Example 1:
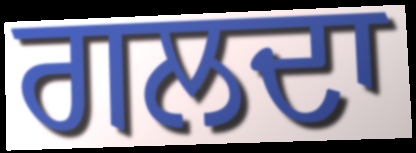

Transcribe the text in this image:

ਗਲਦਾ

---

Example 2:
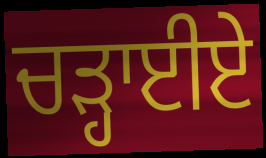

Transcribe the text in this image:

ਚੜ੍ਹਾਈਏ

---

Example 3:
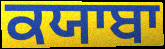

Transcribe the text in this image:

ਕਯਾਬਾ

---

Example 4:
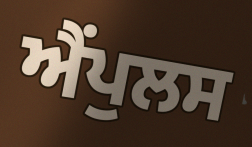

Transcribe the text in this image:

ਐਂਪੁਲਸ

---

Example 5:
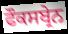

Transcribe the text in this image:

ਫੌਕਸਬ੍ਰੇਨ